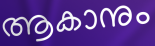
ആകാനും